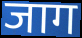
जाग